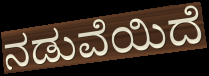
ನಡುವೆಯಿದೆ